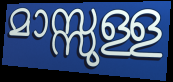
മാസ്സുള്ള